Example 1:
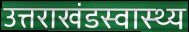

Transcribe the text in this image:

उत्तराखंडस्वास्थ्य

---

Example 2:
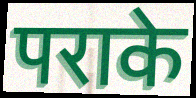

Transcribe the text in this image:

पराके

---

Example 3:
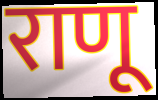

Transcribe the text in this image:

राणू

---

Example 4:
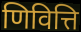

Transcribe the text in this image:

णिवित्ति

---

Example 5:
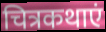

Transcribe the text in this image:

चित्रकथाएं